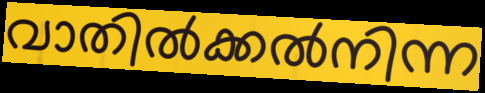
വാതിൽക്കൽനിന്ന